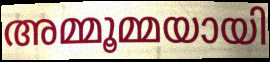
അമ്മൂമ്മയായി